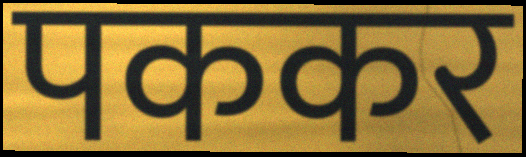
पककर